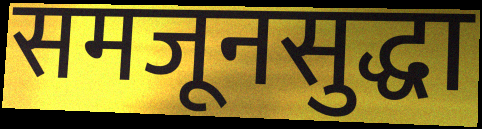
समजूनसुद्धा